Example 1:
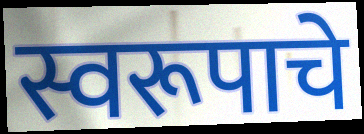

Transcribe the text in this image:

स्वरूपाचे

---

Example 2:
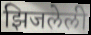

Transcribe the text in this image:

झिजलेली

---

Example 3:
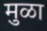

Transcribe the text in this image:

मुळा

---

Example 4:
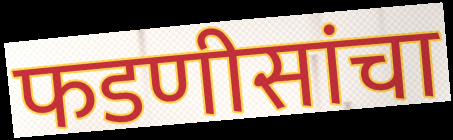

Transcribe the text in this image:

फडणीसांचा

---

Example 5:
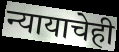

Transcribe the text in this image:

न्यायाचेही